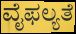
ವೈಫಲ್ಯತೆ